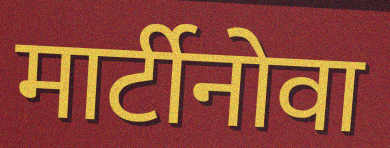
मार्टीनोवा